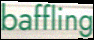
baffling